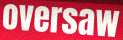
oversaw